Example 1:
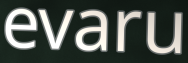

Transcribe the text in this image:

evaru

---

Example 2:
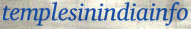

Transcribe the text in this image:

templesinindiainfo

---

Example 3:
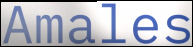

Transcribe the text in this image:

Amales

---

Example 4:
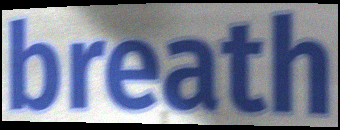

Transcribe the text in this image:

breath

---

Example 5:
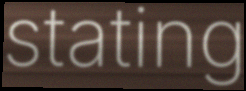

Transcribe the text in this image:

stating